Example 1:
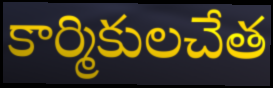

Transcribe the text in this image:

కార్మికులచేత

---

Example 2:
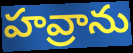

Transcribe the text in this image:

హవ్రాను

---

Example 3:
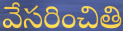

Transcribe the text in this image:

వేసరించితి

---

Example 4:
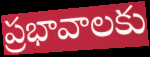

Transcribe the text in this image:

ప్రభావాలకు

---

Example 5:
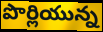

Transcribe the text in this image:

పొర్లియున్న